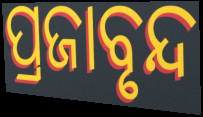
ପ୍ରଜାବୃନ୍ଦ